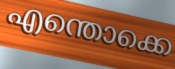
എന്തൊക്കെ